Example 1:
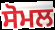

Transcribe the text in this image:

ਸੋਮਲ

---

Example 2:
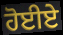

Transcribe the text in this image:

ਹੋਈਏ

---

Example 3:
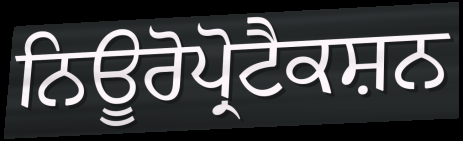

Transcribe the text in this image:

ਨਿਊਰੋਪ੍ਰੋਟੈਕਸ਼ਨ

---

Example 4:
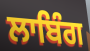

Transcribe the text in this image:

ਲਾਬਿੰਗ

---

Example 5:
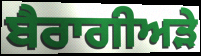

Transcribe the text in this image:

ਬੈਰਾਗੀਅੜੇ